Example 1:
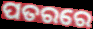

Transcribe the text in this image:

ପତରରେ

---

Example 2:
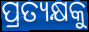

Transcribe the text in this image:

ପ୍ରତ୍ୟକ୍ଷକୁ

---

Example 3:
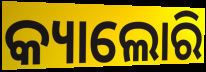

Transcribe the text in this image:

କ୍ୟାଲୋରି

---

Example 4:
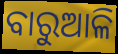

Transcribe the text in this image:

ବାରୁଆଳି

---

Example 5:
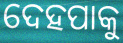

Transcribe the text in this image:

ଦେହପାକୁ